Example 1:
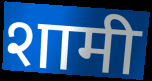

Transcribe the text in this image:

शामी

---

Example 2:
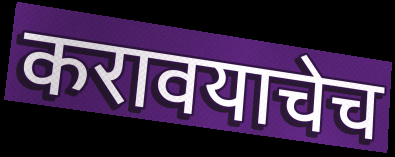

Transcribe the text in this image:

करावयाचेच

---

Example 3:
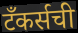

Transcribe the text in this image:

टँकर्सची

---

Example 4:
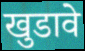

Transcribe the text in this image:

खुडावे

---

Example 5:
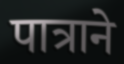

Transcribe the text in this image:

पात्राने